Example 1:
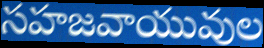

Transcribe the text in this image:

సహజవాయువుల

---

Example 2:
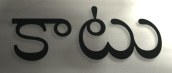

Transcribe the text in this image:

కాటు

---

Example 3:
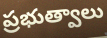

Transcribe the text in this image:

ప్రభుత్వాలు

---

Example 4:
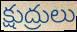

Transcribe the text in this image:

క్షుద్రులు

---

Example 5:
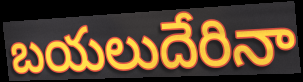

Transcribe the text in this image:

బయలుదేరినా